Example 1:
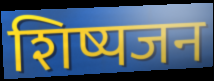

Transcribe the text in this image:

शिष्यजन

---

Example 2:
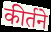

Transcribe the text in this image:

कीर्तने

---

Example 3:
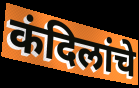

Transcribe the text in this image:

कंदिलांचे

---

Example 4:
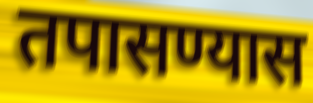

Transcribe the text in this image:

तपासण्यास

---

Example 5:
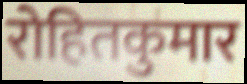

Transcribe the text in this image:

रोहितकुमार